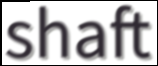
shaft